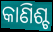
କାଣିଶ୍ଚ